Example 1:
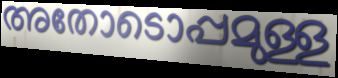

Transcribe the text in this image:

അതോടൊപ്പമുള്ള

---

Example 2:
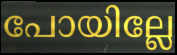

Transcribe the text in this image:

പോയില്ലേ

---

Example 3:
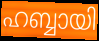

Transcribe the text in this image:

ഹബ്ബായി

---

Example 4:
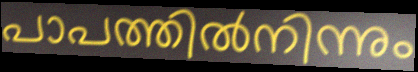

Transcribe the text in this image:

പാപത്തിൽനിന്നും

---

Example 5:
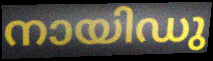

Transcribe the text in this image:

നായിഡു